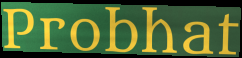
Probhat